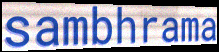
sambhrama